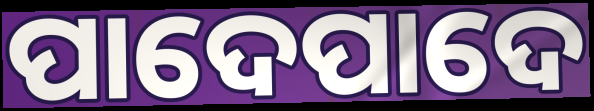
ପାଦେପାଦେ